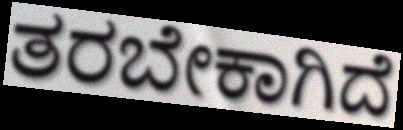
ತರಬೇಕಾಗಿದೆ